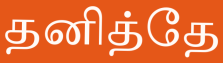
தனித்தே